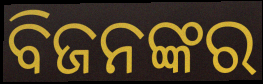
ବିଜନଙ୍କର